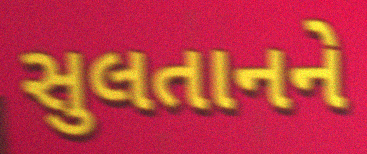
સુલતાનને